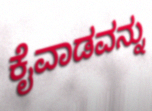
ಕೈವಾಡವನ್ನು